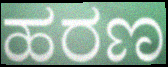
ಹರಣ